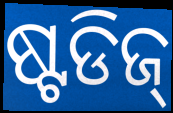
ଷ୍ଟଡିଜ୍